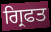
ਗ੍ਰਿਫਤ